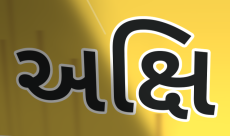
અક્ષિ